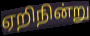
ஏறிநின்று